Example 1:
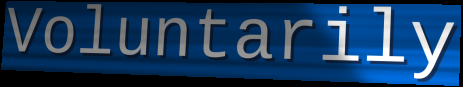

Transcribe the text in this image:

Voluntarily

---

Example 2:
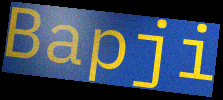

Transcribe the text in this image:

Bapji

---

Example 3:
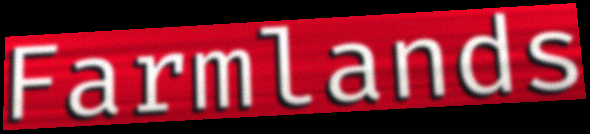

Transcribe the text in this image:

Farmlands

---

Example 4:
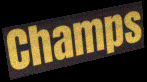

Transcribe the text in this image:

Champs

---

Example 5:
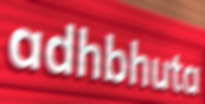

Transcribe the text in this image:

adhbhuta